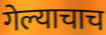
गेल्याचाच